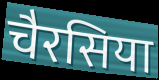
चैरसिया